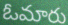
ఓమారు